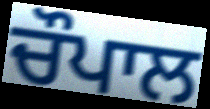
ਚੌਪਾਲ